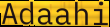
Adaahi